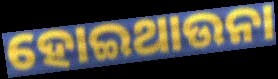
ହୋଇଥାଉନା